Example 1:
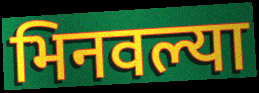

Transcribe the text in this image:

भिनवल्या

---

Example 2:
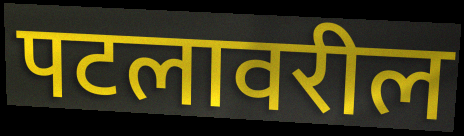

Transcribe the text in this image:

पटलावरील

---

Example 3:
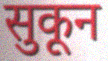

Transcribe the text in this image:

सुकून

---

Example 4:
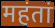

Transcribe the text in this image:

महंतां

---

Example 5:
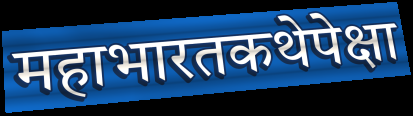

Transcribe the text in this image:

महाभारतकथेपेक्षा